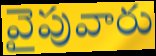
వైపువారు